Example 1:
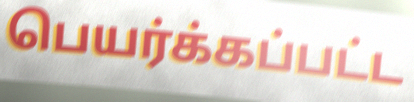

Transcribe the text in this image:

பெயர்க்கப்பட்ட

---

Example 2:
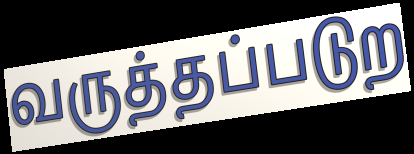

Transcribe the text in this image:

வருத்தப்படுற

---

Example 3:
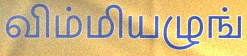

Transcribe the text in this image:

விம்மியழுங்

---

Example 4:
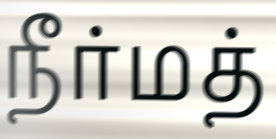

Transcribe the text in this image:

நீர்மத்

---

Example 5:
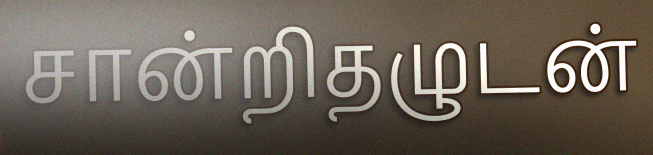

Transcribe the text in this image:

சான்றிதழுடன்